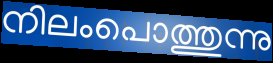
നിലംപൊത്തുന്നു